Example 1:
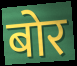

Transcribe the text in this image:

बोर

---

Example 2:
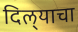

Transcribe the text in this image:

दिल्याचा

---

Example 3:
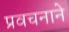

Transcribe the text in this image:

प्रवचनाने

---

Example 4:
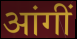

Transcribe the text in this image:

आंगीं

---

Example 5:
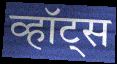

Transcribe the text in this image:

व्हॉट्स